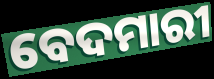
ବେଦମାରୀ